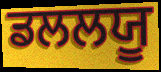
ਡਲਲਯੂ